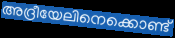
അദ്രീയേലിനെക്കൊണ്ട്